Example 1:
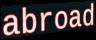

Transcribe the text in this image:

abroad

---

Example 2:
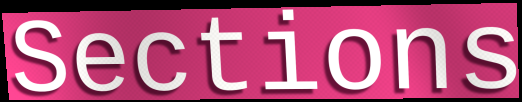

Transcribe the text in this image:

Sections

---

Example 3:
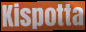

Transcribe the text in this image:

Kispotta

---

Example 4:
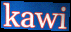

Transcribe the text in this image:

kawi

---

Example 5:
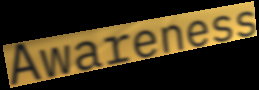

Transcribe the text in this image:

Awareness